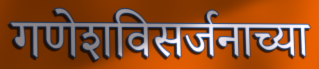
गणेशविसर्जनाच्या